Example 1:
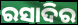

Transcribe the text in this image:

ରସାଦିର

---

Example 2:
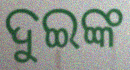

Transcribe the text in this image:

ଦୁଇଙ୍କ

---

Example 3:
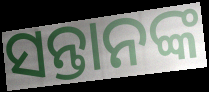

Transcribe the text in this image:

ସନ୍ତାନଙ୍କ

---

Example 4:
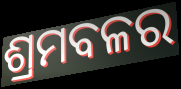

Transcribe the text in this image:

ଶ୍ରମବଳର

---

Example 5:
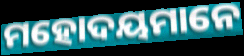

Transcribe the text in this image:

ମହୋଦୟମାନେ